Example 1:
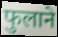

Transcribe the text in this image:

फुलाने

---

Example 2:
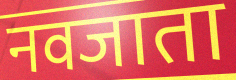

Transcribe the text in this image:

नवजाता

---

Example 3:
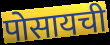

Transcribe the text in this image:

पोसायची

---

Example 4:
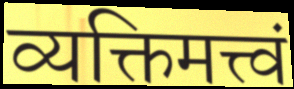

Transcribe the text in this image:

व्यक्तिमत्त्वं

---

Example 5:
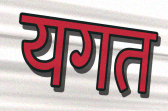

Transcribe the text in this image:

यगत